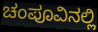
ಚಂಪೂವಿನಲ್ಲಿ